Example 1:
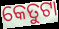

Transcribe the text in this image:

କେତୁଟା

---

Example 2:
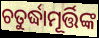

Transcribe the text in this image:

ଚତୁର୍ଦ୍ଧାମୂର୍ତ୍ତିଙ୍କ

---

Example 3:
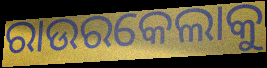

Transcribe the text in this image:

ରାଉରକେଲାକୁ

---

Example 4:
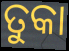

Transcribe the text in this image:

ତୁକା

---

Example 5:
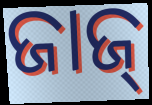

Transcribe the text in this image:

ଜାଜ୍